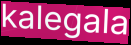
kalegala